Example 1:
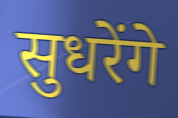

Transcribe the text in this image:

सुधरेंगे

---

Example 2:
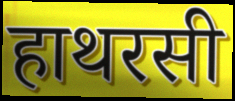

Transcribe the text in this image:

हाथरसी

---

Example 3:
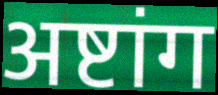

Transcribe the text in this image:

अष्टांग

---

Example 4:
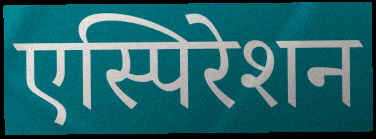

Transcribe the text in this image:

एस्पिरेशन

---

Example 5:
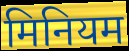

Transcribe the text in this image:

मिनियम